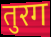
तुरग